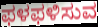
ಫಳಫಳಿಸುವ